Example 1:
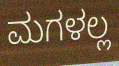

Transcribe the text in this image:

ಮಗಳಲ್ಲ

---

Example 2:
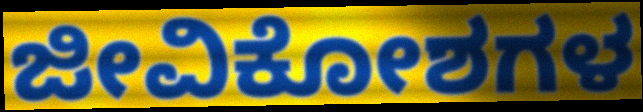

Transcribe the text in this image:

ಜೀವಿಕೋಶಗಳ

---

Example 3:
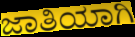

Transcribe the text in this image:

ಜಾತಿಯಾಗಿ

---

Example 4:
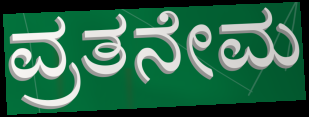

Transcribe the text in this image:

ವ್ರತನೇಮ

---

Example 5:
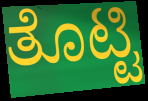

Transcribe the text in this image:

ತೊಟ್ಟಿ